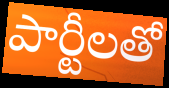
పార్టీలతో